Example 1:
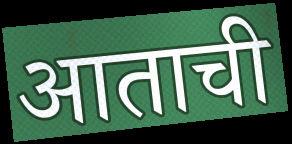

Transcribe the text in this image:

आताची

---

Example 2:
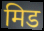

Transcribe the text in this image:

मिड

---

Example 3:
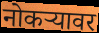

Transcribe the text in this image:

नोकऱ्यावर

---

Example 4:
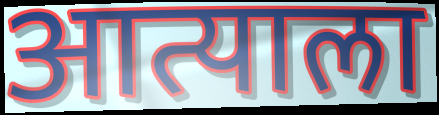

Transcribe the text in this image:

आत्याला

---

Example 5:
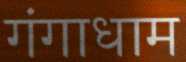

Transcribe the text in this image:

गंगाधाम